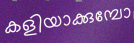
കളിയാക്കുമ്പോ